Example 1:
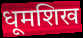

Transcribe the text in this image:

धूमशिख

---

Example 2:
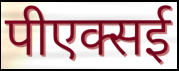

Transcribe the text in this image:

पीएक्सई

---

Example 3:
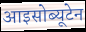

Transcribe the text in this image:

आइसोब्यूटेन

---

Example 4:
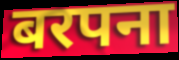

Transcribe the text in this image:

बरपना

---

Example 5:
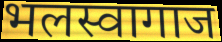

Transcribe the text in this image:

भलस्वागाज